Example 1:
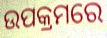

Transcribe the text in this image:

ଉପକ୍ରମରେ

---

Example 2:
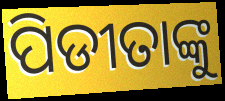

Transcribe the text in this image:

ପିଡୀତାଙ୍କୁ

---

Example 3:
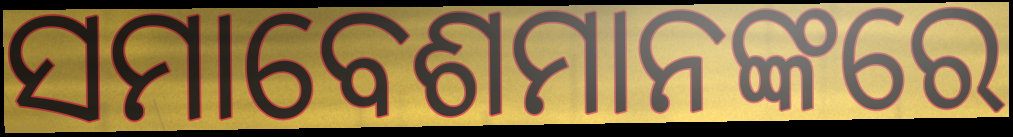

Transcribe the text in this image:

ସମାବେଶମାନଙ୍କରେ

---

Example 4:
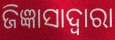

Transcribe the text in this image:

ଜିଜ୍ଞାସାଦ୍ୱାରା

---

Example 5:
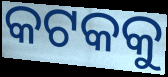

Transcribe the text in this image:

କଟକକୁ